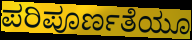
ಪರಿಪೂರ್ಣತೆಯೂ